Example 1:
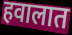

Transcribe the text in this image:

हवालात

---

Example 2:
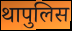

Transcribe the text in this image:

थापुलिस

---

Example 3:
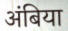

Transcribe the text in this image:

अंबिया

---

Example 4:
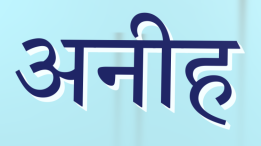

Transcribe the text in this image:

अनीह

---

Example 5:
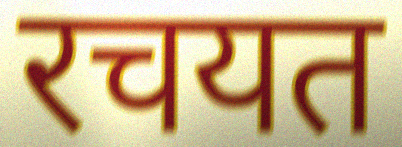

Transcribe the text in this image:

रचयत